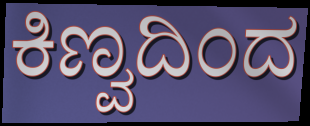
ಕಿಣ್ವದಿಂದ